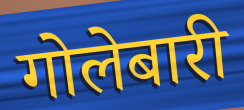
गोलेबारी